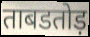
ताबडतोड़